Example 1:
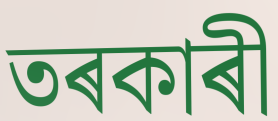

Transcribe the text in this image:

তৰকাৰী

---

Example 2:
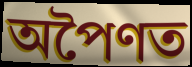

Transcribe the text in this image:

অপৈণত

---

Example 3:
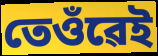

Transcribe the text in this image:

তেওঁৱেই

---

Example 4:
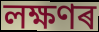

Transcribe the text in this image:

লক্ষণৰ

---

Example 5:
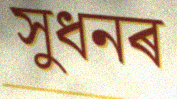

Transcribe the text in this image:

সুধনৰ